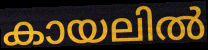
കായലിൽ